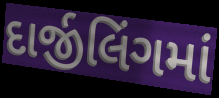
દાર્જીલિંગમાં